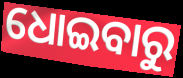
ଧୋଇବାରୁ